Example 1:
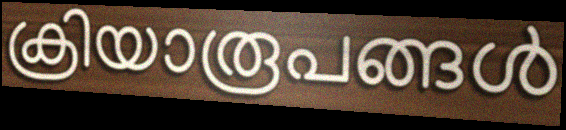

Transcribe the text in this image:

ക്രിയാരൂപങ്ങൾ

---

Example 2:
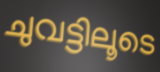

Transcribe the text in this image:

ചുവട്ടിലൂടെ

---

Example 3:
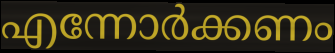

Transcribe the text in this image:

എന്നോർക്കണം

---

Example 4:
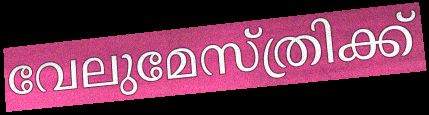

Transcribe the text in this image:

വേലുമേസ്ത്രിക്ക്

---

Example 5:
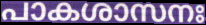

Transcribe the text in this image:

പാകശാസനഃ